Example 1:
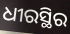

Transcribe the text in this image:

ଧୀରସ୍ଥିର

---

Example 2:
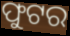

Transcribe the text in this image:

ଫୁଟର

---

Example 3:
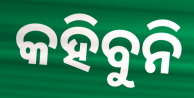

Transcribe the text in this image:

କହିବୁନି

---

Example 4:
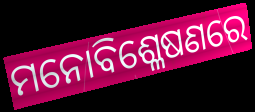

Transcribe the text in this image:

ମନୋବିଶ୍ଳେଷଣରେ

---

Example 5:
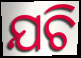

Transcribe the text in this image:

ଯଚି